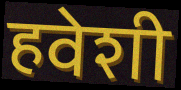
हवेशी